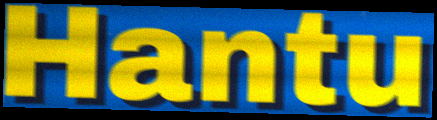
Hantu